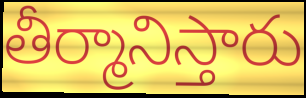
తీర్మానిస్తారు